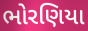
ભોરણિયા